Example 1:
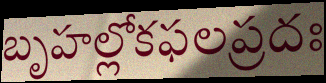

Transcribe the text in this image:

బృహల్లోకఫలప్రదః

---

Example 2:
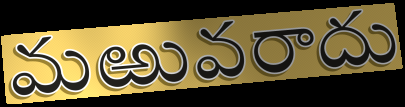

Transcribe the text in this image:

మఱువరాదు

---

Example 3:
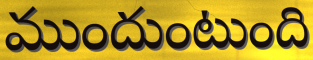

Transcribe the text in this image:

ముందుంటుంది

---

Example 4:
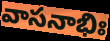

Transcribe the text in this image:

వాసనాభిః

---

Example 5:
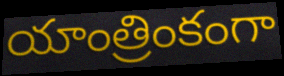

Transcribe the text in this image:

యాంత్రింకంగా